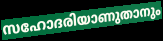
സഹോദരിയാണുതാനും